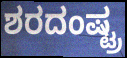
ಶರದಂಷ್ಟ್ರ